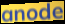
anode